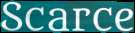
Scarce